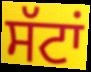
ਸੱਟਾਂ